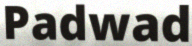
Padwad